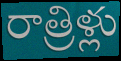
రాత్రిళ్లు